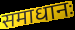
समाधानः